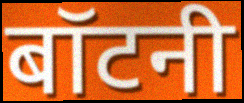
बॉटनी